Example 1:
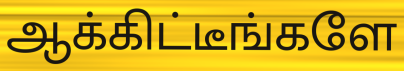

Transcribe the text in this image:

ஆக்கிட்டீங்களே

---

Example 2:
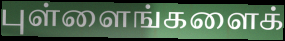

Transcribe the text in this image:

புள்ளைங்களைக்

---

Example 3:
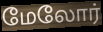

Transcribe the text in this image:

மேலோர்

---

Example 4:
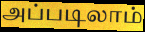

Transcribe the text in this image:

அப்படிலாம்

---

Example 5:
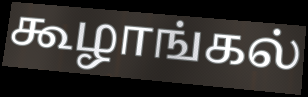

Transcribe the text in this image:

கூழாங்கல்